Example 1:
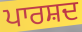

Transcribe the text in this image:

ਪਾਰਸ਼ਦ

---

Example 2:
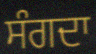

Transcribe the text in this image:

ਸੰਗਦਾ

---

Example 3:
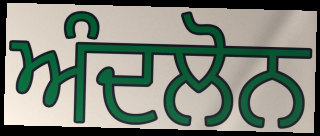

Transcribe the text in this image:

ਅੰਦਲੋਨ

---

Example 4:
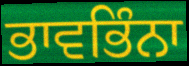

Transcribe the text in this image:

ਭਾਵਭਿੰਨਾ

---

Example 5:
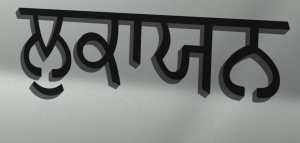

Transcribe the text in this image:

ਲੁਕਾਯਨ